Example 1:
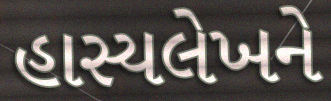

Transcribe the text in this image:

હાસ્યલેખને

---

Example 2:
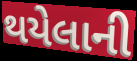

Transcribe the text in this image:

થયેલાની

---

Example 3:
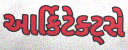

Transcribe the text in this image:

આર્કિટેક્ટ્સે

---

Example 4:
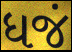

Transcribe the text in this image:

ધજં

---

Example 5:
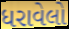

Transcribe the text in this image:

ધરાવેલો